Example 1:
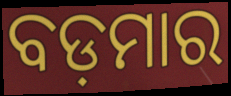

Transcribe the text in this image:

ବଡ଼ମାର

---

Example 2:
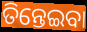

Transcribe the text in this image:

ତିନ୍ତେଇବା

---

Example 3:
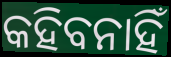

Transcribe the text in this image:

କହିବନାହିଁ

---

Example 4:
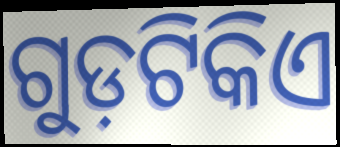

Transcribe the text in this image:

ଗୁଡ଼ଟିକିଏ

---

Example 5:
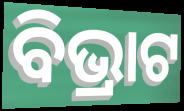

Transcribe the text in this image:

ବିଭ୍ରାଟ